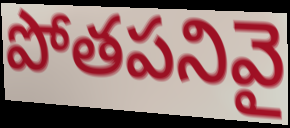
పోతపనివై